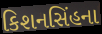
કિશનસિંહના